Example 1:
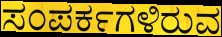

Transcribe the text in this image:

ಸಂಪರ್ಕಗಳಿರುವ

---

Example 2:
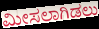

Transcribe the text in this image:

ಮೀಸಲಾಗಿಡಲು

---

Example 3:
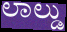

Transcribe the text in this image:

ಲಾಲ್ಡು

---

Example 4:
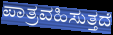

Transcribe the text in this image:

ಪಾತ್ರವಹಿಸುತ್ತದೆ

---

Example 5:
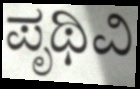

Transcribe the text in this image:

ಪೃಥಿವಿ